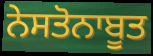
ਨੇਸਤੋਨਾਬੂਤ